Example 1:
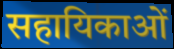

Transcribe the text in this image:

सहायिकाओं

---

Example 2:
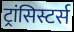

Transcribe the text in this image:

ट्रांसिस्टर्स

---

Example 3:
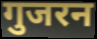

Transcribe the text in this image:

गुजरन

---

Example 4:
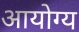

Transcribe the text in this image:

आयोग्य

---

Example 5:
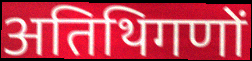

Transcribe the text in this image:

अतिथिगणों